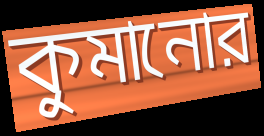
কুমানোর